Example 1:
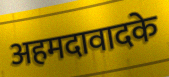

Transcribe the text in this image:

अहमदावादके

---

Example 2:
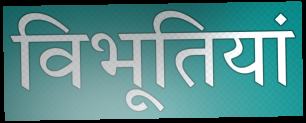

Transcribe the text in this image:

विभूतियां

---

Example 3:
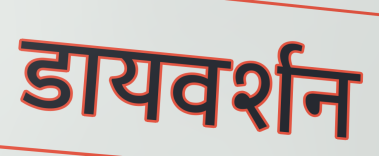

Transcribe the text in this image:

डायवर्शन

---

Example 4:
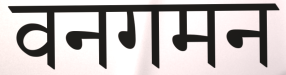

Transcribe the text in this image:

वनगमन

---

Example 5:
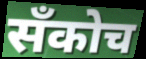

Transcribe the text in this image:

सँकोच